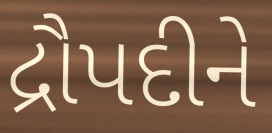
દ્રૌપદીને